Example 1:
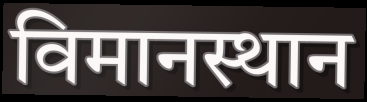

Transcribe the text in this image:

विमानस्थान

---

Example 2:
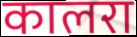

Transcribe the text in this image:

कालरा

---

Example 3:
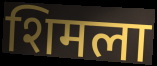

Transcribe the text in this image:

शिमला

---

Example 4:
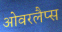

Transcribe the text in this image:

ओवरलैप्स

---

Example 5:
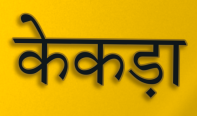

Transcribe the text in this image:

केकड़ा